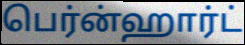
பெர்ன்ஹார்ட்